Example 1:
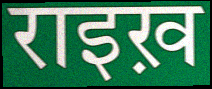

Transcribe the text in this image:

राइख़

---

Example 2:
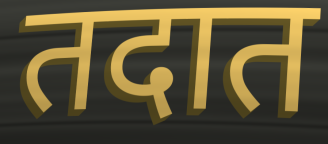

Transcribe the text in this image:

तदात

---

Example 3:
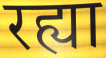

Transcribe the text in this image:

रह्या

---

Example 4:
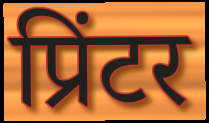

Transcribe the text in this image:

प्रिंटर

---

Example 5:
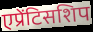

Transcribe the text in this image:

एप्रेंटिसशिप